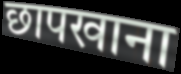
छापखाना